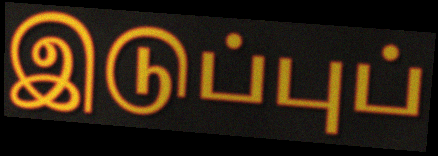
இடுப்புப்